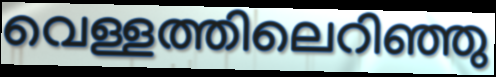
വെള്ളത്തിലെറിഞ്ഞു